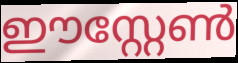
ഈസ്റ്റേൺ